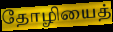
தோழியைத்